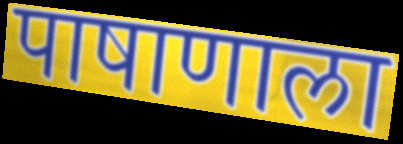
पाषाणाला